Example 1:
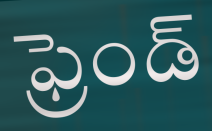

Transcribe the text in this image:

ఫ్రెండ్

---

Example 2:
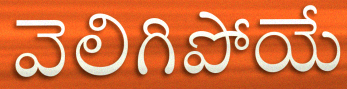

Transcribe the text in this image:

వెలిగిపోయే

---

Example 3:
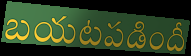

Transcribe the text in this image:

బయటపడిందీ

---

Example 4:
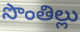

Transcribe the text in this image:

సొంతిల్లు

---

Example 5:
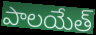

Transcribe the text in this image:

పాలయేత్